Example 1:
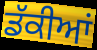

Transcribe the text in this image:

ਡੱਕੀਆਂ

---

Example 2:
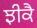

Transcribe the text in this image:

ਝੀਕੈ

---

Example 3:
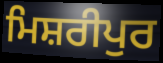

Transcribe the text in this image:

ਮਿਸ਼ਰੀਪੁਰ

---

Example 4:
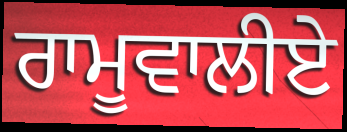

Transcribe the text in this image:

ਰਾਮੂਵਾਲੀਏ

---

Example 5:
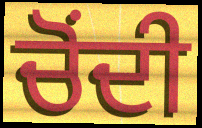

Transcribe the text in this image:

ਚੋੰਦੀ